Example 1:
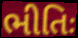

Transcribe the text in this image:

ભીતિઃ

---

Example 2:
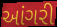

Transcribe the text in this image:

આંગરી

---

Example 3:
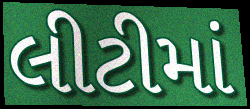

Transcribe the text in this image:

લીટીમાં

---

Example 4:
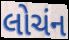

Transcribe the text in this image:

લોચંન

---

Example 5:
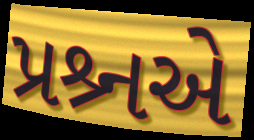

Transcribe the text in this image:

પ્રશ્ર્નએ